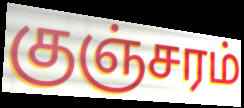
குஞ்சரம்